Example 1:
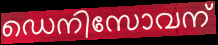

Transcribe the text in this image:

ഡെനിസോവന്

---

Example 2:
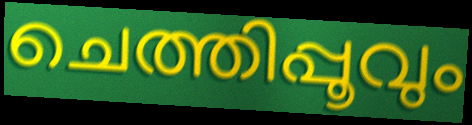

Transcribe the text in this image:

ചെത്തിപ്പൂവും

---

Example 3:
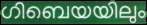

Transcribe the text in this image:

ഗിബെയയിലും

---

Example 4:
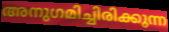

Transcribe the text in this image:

അനുഗമിച്ചിരിക്കുന്ന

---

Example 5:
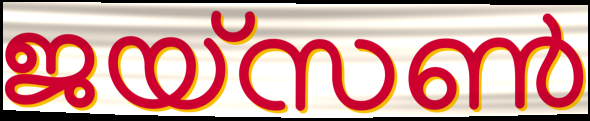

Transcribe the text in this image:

ജയ്സൺ